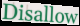
Disallow